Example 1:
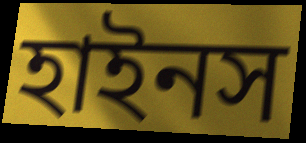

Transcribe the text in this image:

হাইনস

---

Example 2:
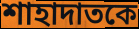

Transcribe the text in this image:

শাহাদাতকে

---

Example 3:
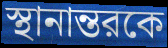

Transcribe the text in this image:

স্থানান্তরকে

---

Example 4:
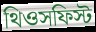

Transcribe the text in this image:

থিওসফিস্ট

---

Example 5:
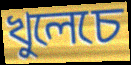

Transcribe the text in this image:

খুলেচে